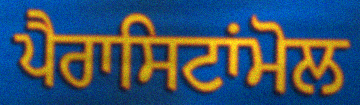
ਪੈਰਾਸਿਟਾਂਮੋਲ